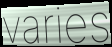
varies